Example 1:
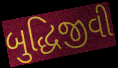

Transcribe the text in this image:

બુદ્ધિજીવી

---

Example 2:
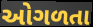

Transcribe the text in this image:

ઓગળતા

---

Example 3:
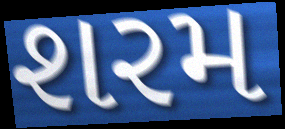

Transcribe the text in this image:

શરમ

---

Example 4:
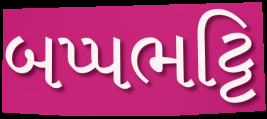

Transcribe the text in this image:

બપ્પભટ્ટિ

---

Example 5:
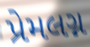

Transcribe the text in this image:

પ્રેમલગ્ન